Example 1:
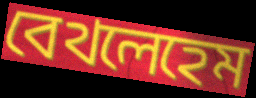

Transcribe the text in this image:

বেথলেহেম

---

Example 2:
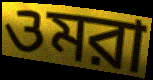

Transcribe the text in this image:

ওমরা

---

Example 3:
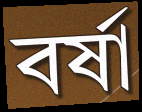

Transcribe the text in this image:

বর্ষা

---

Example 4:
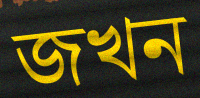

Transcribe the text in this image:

জখন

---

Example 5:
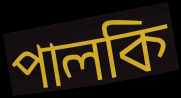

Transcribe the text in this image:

পালকি